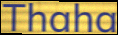
Thaha